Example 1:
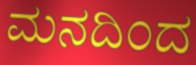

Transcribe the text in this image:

ಮನದಿಂದ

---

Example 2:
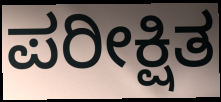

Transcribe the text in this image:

ಪರೀಕ್ಷಿತ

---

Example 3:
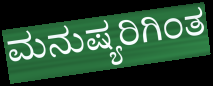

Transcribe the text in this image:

ಮನುಷ್ಯರಿಗಿಂತ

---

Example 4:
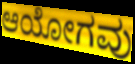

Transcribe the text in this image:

ಆಯೋಗವು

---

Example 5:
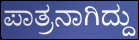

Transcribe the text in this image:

ಪಾತ್ರನಾಗಿದ್ದು